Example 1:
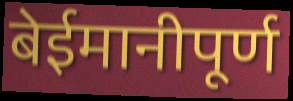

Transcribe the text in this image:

बेईमानीपूर्ण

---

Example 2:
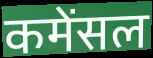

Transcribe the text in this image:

कमेंसल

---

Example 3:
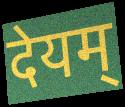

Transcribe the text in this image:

देयम्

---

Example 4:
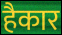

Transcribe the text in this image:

हैकार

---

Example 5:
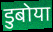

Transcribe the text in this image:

डुबोया